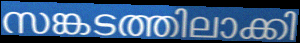
സങ്കടത്തിലാക്കി